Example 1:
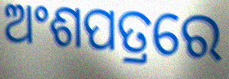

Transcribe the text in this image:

ଅଂଶପତ୍ରରେ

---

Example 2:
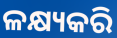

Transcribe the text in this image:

ଳକ୍ଷ୍ୟକରି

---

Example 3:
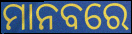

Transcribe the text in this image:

ମାନବରେ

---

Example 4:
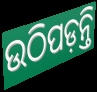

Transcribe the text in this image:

ଉଠିପଡ଼ନ୍ତି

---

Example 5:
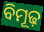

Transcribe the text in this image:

ବିମୂଢ଼